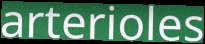
arterioles